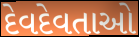
દેવદેવતાઓ